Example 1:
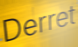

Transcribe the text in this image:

Derret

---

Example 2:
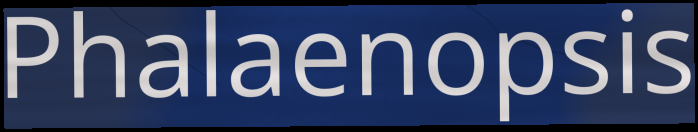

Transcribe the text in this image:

Phalaenopsis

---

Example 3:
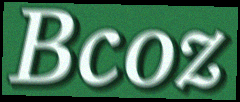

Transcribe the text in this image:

Bcoz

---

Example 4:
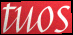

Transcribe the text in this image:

tuos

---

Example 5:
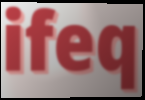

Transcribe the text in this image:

ifeq